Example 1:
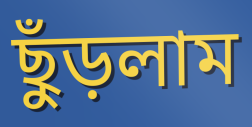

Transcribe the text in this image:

ছুঁড়লাম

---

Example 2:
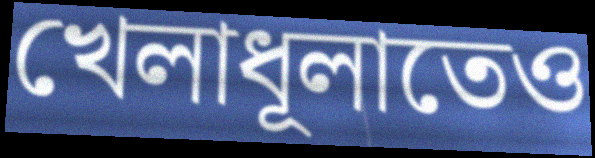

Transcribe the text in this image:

খেলাধূলাতেও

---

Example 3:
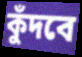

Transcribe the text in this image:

কুঁদবে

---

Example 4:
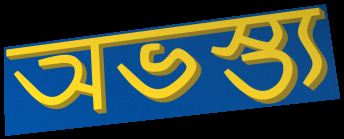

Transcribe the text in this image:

অভস্ত্য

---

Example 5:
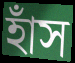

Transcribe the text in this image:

হাঁস